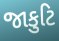
જાકુટિ